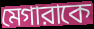
মেগারাকে